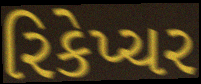
રિકેપ્ચર